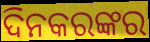
ଦିନକରଙ୍କର